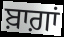
ਬ਼ਾਗ਼ਾਂ